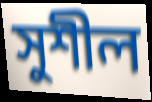
সুশীল